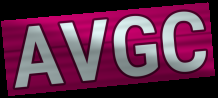
AVGC